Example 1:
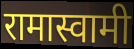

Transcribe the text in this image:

रामास्वामी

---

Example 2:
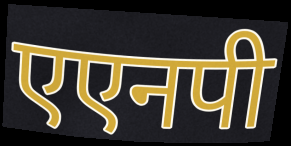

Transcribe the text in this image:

एएनपी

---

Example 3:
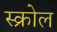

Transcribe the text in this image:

स्क्रोल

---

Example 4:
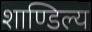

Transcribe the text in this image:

शाण्डिल्य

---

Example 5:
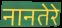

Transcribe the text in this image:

नानतेरे